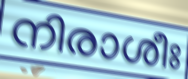
നിരാശീഃ